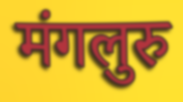
मंगलुरु